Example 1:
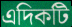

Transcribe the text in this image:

এদিকটি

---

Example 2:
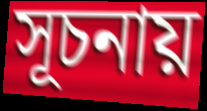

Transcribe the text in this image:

সূচনায়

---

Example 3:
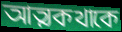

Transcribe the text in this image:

আত্মকথাকে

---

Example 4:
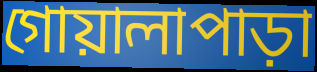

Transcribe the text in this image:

গোয়ালাপাড়া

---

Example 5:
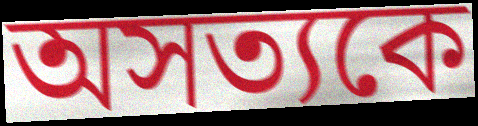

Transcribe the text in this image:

অসত্যকে